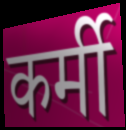
कर्मी